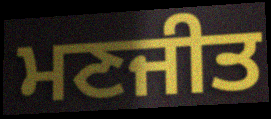
ਮਣਜੀਤ